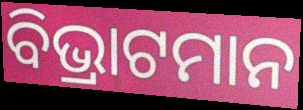
ବିଭ୍ରାଟମାନ